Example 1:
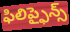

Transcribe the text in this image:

ఫిలిప్ఫైన్స్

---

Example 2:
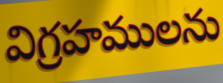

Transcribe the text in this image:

విగ్రహములను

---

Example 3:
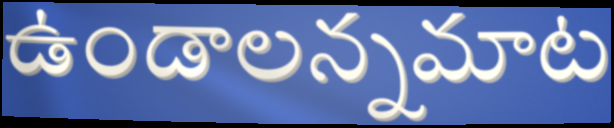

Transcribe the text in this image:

ఉండాలన్నమాట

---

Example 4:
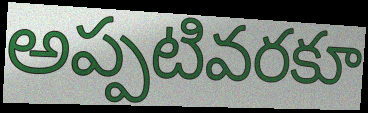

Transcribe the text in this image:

అప్పటివరకూ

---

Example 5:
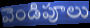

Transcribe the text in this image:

వెండిపూలు